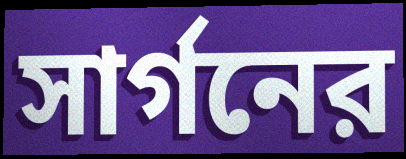
সার্গনের